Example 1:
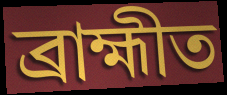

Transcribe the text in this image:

ব্ৰাহ্মীত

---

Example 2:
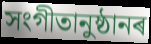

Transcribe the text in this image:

সংগীতানুষ্ঠানৰ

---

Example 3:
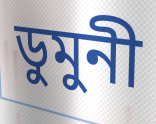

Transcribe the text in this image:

ডুমুনী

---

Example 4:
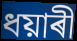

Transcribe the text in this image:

ধয়াৰী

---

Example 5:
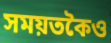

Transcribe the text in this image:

সময়তকৈও